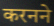
करनने